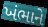
ખંભાને